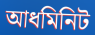
আধমিনিট